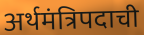
अर्थमंत्रिपदाची